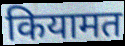
कियामत